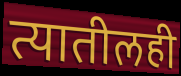
त्यातीलही